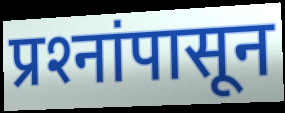
प्रश्नांपासून